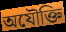
অযৌক্তি